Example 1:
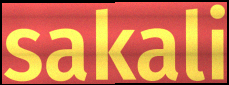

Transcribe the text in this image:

sakali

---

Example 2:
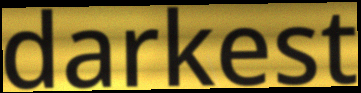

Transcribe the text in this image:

darkest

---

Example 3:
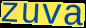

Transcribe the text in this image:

zuva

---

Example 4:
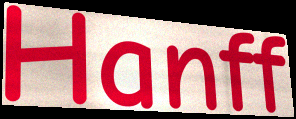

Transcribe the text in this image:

Hanff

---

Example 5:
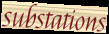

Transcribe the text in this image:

substations